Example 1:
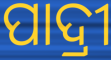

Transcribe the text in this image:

ପାଦ୍ରୀ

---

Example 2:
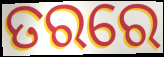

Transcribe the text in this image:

ତରରେ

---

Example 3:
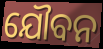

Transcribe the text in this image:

ଯୌବନ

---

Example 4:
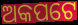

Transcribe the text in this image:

ଅକପଟେ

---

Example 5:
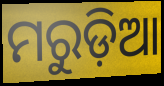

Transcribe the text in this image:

ମରୁଡ଼ିଆ